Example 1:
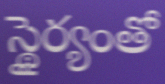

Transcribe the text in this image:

స్థైర్యంతో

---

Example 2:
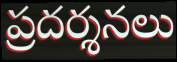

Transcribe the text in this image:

ప్రదర్శనలు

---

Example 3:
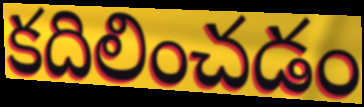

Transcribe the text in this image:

కదిలించడం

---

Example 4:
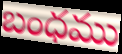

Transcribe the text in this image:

బంధము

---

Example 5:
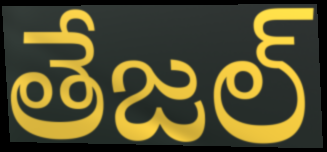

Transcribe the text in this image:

తేజల్